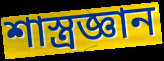
শাস্ত্রজ্ঞান